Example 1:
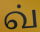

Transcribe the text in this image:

வ்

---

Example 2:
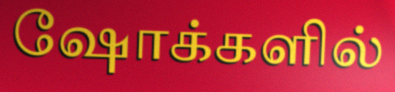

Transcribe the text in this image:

ஷோக்களில்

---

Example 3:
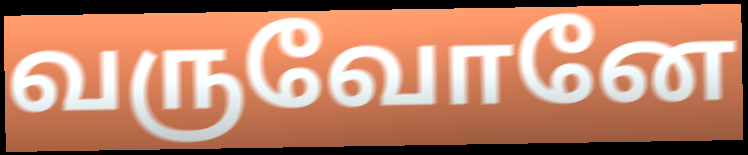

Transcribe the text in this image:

வருவோனே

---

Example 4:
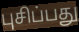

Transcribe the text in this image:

புசிப்பது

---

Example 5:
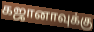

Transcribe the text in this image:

கஜானாவுக்கு